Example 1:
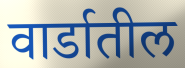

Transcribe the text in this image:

वार्डातील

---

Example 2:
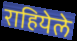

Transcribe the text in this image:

राहियेले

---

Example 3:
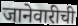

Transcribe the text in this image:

जानेवारीची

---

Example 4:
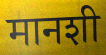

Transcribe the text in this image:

मानशी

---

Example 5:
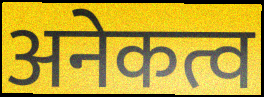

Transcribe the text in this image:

अनेकत्व